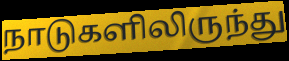
நாடுகளிலிருந்து